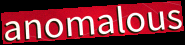
anomalous